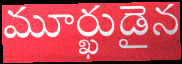
మూర్ఖుడైన